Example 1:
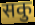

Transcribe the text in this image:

सकु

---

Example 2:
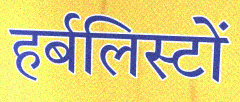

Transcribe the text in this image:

हर्बलिस्टों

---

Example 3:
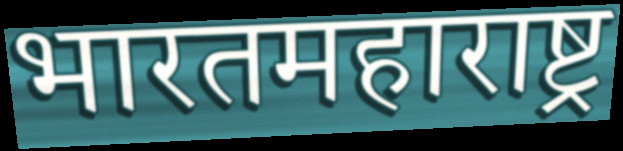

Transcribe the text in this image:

भारतमहाराष्ट्र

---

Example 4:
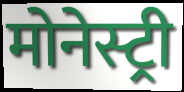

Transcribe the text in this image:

मोनेस्‍ट्री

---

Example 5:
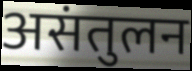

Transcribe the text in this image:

असंतुलन